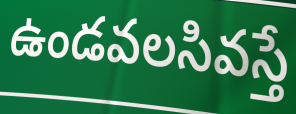
ఉండవలసివస్తే